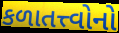
કળાતત્ત્વોનો